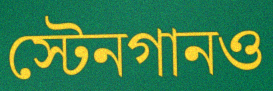
স্টেনগানও